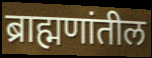
ब्राह्मणांतील